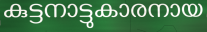
കുട്ടനാട്ടുകാരനായ